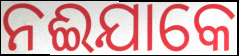
ନଈଯାକେ